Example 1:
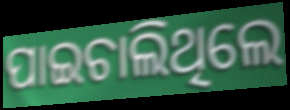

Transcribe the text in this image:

ପାଇଚାଲିଥିଲେ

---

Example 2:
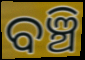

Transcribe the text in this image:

ବଞ୍ଚି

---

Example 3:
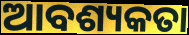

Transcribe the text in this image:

ଆବଶ୍ୟକତା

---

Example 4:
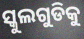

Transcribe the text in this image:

ସ୍କୁଲଗୁଡିକୁ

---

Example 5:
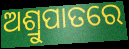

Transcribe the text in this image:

ଅଶ୍ରୁପାତରେ